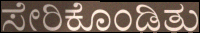
ಸೇರಿಕೊಂಡಿತು